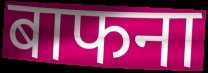
बाफना